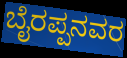
ಬೈರಪ್ಪನವರ